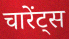
चारेंट्स